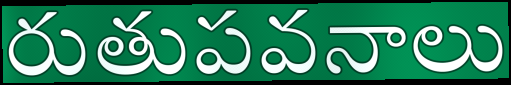
రుతుపవనాలు